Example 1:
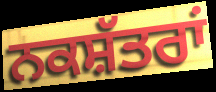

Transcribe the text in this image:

ਨਕਸ਼ੱਤਰਾਂ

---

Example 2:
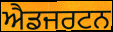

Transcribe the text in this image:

ਐਡਜਰਟਨ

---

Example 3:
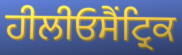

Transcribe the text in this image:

ਹੀਲੀਓਸੈਂਟ੍ਰਿਕ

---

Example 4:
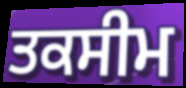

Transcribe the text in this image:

ਤਕਸੀਮ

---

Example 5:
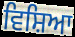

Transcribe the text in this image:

ਵਿਸ਼ਿਆ